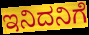
ಇನಿದನಿಗೆ